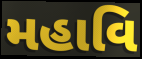
મહાવિ